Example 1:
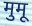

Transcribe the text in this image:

मुमू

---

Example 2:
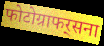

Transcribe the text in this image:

फोटोग्राफर्सना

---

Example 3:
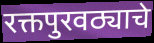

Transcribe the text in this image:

रक्तपुरवठ्याचे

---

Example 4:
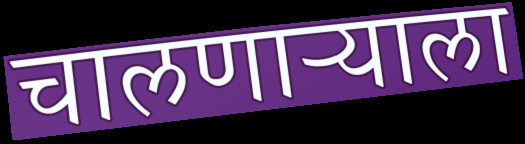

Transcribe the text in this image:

चालणाऱ्याला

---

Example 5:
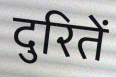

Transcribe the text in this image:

दुरितें